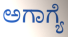
ಅಗಾಗ್ಯೆ